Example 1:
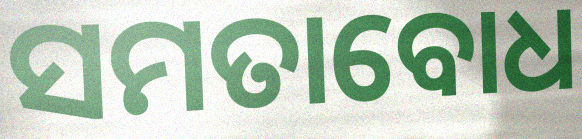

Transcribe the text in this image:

ସମତାବୋଧ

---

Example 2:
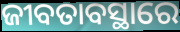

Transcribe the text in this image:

ଜୀବତାବସ୍ଥାରେ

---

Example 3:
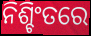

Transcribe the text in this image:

ନିଶ୍ଚିଂତରେ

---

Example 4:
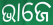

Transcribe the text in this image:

ଭାଜେ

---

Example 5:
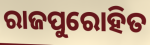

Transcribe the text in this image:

ରାଜପୁରୋହିତ